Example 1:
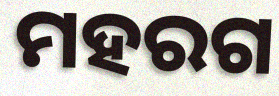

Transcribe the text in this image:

ମହରଗ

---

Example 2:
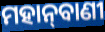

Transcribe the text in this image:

ମହାନ୍‌ବାଣୀ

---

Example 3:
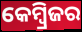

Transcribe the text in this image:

କେମ୍ବ୍ରିଜର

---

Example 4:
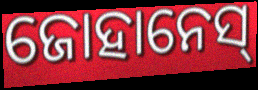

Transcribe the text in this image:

ଜୋହାନେସ୍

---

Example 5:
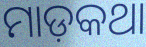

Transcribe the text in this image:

ମାଡ଼କଥା